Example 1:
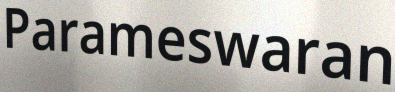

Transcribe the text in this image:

Parameswaran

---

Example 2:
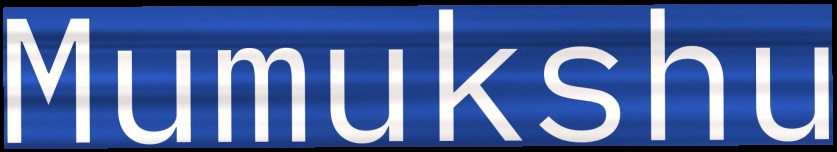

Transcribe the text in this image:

Mumukshu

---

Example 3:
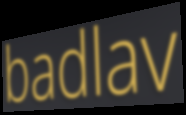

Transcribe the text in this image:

badlav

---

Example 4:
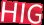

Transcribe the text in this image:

HIG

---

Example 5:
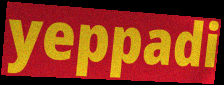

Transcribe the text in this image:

yeppadi